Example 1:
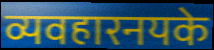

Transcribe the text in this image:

व्यवहारनयके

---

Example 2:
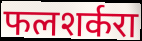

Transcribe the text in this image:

फलशर्करा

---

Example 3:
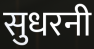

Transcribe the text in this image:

सुधरनी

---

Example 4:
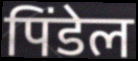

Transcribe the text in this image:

पिंडेल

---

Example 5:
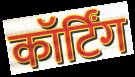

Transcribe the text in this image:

कॉर्टिंग